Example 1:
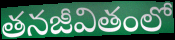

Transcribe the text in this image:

తనజీవితంలో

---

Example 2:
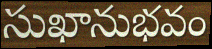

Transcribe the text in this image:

సుఖానుభవం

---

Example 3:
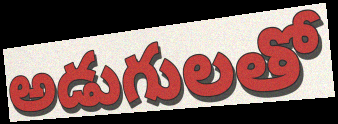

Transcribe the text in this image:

అడుగులతో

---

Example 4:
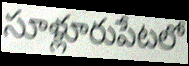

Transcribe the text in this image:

సూళ్లూరుపేటలో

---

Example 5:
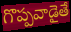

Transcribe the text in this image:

గొప్పవాడైతే